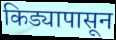
किड्यापासून